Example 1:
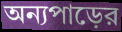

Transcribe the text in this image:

অন্যপাড়ের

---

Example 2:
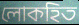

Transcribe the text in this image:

লোকহিত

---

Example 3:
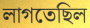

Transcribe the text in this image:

লাগতেছিল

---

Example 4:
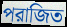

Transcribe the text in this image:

পরাজিত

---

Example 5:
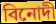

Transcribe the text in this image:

বিনোদী